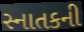
સ્નાતકની